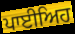
ਪਾਈਅਿਹ